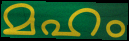
മഹം